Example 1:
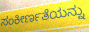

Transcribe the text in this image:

ಸಂಕೀರ್ಣತೆಯನ್ನು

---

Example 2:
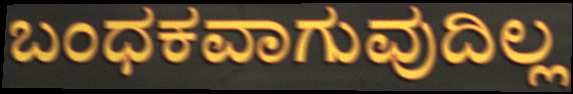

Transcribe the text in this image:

ಬಂಧಕವಾಗುವುದಿಲ್ಲ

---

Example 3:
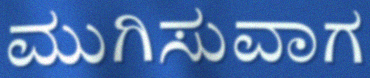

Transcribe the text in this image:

ಮುಗಿಸುವಾಗ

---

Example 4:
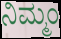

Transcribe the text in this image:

ನಿಮ್ಮಂ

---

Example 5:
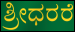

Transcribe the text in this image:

ಶ್ರೀಧರರೆ